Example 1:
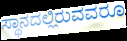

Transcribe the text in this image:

ಸ್ಥಾನದಲ್ಲಿರುವವರೂ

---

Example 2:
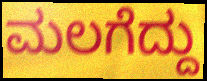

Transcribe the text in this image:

ಮಲಗೆದ್ದು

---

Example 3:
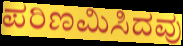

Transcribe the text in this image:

ಪರಿಣಮಿಸಿದವು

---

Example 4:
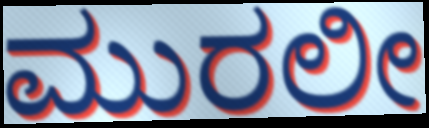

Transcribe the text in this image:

ಮುರಲೀ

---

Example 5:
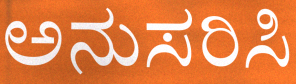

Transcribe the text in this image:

ಅನುಸರಿಸಿ